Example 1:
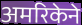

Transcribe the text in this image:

अमरिकेने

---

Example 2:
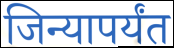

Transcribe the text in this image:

जिन्यापर्यंत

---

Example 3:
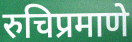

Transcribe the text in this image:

रुचिप्रमाणे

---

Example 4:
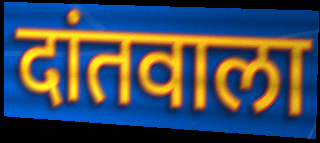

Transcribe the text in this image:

दांतवाला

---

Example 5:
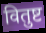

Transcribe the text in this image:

वितुष्ट